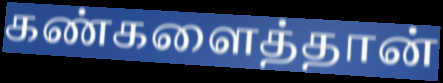
கண்களைத்தான்